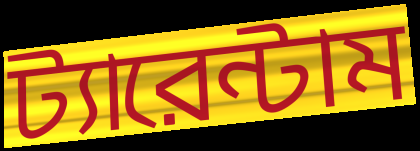
ট্যারেন্টাম